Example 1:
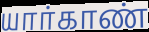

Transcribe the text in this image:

யார்காண்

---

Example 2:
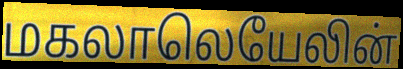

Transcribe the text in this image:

மகலாலெயேலின்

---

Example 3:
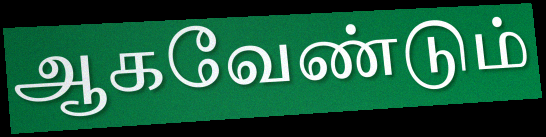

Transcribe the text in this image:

ஆகவேண்டும்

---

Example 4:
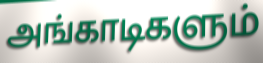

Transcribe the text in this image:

அங்காடிகளும்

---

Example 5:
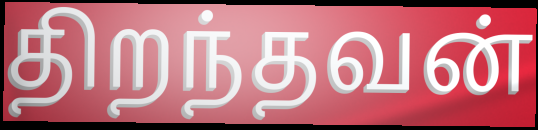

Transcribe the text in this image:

திறந்தவன்